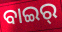
ବାଇର୍